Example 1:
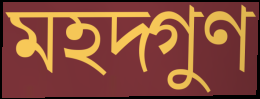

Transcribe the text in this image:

মহদ্গুণ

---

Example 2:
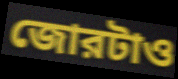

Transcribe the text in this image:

জোরটাও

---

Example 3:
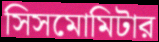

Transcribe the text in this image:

সিসমোমিটার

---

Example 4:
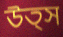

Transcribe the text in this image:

উত্স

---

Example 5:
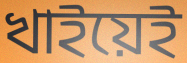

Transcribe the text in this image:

খাইয়েই